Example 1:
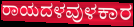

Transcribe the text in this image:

ರಾಯದಳವುಳಕಾರ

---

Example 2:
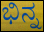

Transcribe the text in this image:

ಭಿನ್ನ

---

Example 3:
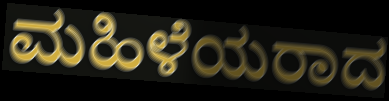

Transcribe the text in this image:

ಮಹಿಳೆಯರಾದ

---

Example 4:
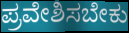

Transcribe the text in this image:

ಪ್ರವೇಶಿಸಬೇಕು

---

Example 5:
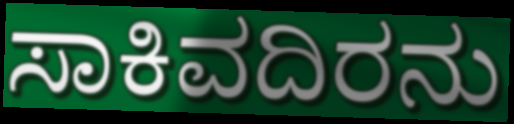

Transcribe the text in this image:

ಸಾಕಿವದಿರನು